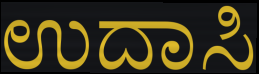
ಉದಾಸಿ